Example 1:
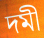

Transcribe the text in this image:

দমী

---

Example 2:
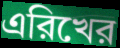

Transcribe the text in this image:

এরিখের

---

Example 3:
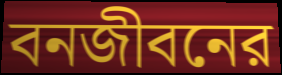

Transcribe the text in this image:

বনজীবনের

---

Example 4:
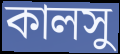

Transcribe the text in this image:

কালসু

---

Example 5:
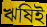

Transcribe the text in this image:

ঋষিই